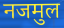
नजमुल